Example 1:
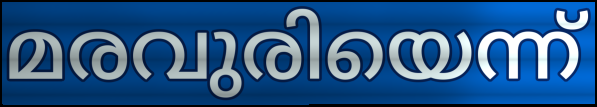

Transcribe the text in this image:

മരവുരിയെന്ന്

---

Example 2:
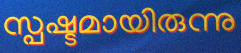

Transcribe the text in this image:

സ്പഷ്ടമായിരുന്നു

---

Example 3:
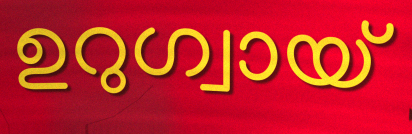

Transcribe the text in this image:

ഉറുഗ്വായ്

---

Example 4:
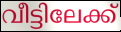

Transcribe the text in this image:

വീട്ടിലേക്ക്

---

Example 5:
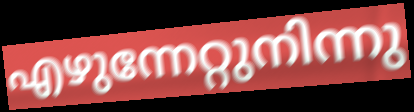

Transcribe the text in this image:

എഴുന്നേറ്റുനിന്നു